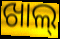
ଖାଲ୍